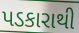
પડકારાથી